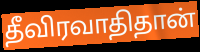
தீவிரவாதிதான்